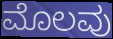
ಮೊಲವು